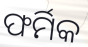
ଫର୍ମିକ